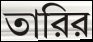
তারির